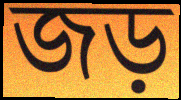
জড়